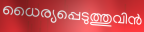
ധൈര്യപ്പെടുത്തുവിൻ